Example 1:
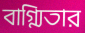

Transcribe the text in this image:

বাগ্মিতার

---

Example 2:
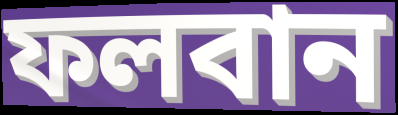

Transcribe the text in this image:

ফলবান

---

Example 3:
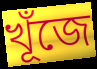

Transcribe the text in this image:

খূঁজে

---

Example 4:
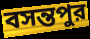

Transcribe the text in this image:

বসন্তপুর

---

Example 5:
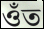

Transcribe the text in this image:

ওঁত